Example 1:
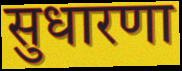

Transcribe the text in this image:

सुधारणा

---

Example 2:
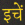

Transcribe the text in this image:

इचें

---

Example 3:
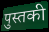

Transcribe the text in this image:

पुस्तकी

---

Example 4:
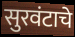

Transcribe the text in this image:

सुरवंटाचे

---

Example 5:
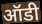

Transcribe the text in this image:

ऑडी